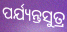
ପର୍ଯ୍ୟନ୍ତସୁତ୍ର